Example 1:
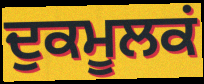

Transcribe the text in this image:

ਦੁਕਮੂਲਕਂ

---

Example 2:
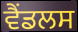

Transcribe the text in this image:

ਵੈਂਡਲਸ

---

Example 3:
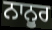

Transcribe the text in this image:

ਨਾਨੂਰ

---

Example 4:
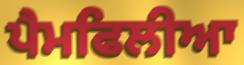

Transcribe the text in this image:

ਪੈਮਫਿਲੀਆ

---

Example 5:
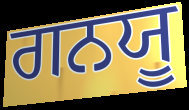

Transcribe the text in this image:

ਗਨਯੂ